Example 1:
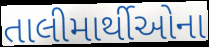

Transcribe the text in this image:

તાલીમાર્થીઓના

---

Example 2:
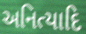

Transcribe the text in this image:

અનિત્યાદિ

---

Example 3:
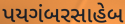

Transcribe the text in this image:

પયગંબરસાહેબ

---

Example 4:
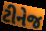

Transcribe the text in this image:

ટીનેજ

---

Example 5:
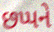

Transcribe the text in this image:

છપ્પને